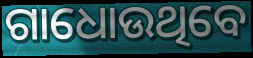
ଗାଧୋଉଥିବେ